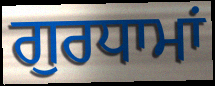
ਗੁਰਧਾਮਾਂ